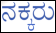
ನಕ್ಕರು